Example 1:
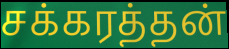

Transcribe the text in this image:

சக்கரத்தன்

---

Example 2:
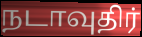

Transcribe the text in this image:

நடாவுதிர்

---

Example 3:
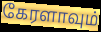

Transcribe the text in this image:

கேரளாவும்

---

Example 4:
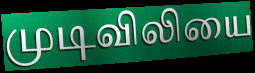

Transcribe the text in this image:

முடிவிலியை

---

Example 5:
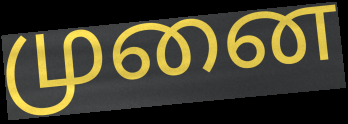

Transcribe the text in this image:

முனை